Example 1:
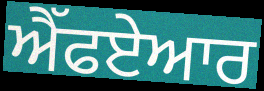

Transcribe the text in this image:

ਐੱਫਏਆਰ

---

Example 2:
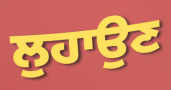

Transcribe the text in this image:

ਲੁਹਾਉਣ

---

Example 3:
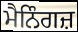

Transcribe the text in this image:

ਮੈਨਿੰਗਜ਼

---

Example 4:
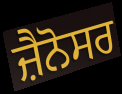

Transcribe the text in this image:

ਜ਼ੈਨੋਸਰ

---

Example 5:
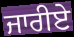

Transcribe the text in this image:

ਜਾਰੀਏ